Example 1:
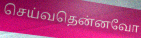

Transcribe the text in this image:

செய்வதென்னவோ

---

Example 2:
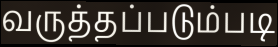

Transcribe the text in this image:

வருத்தப்படும்படி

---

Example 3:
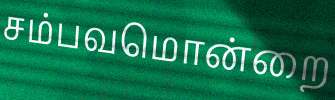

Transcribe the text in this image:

சம்பவமொன்றை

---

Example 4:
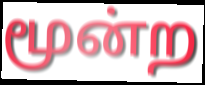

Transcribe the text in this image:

மூன்ற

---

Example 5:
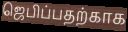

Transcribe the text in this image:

ஜெபிப்பதற்காக